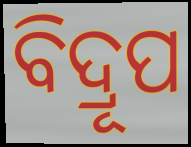
ବିଦ୍ରୂପ